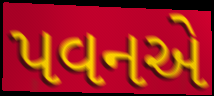
પવનએ